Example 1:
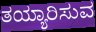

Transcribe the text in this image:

ತಯ್ಯಾರಿಸುವ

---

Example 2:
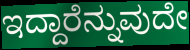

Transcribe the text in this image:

ಇದ್ದಾರೆನ್ನುವುದೇ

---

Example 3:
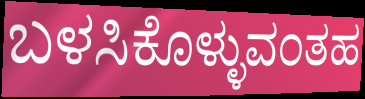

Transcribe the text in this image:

ಬಳಸಿಕೊಳ್ಳುವಂತಹ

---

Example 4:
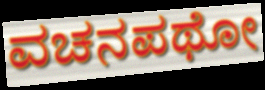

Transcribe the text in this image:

ವಚನಪಥೋ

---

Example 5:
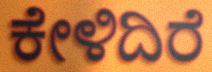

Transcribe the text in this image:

ಕೇಳಿದಿರೆ